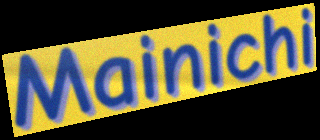
Mainichi